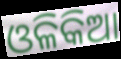
ଓଳିକିଆ